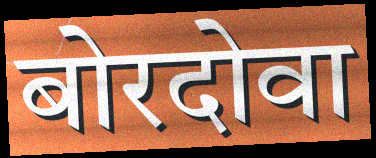
बोरदोवा